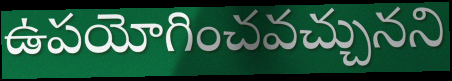
ఉపయోగించవచ్చునని